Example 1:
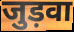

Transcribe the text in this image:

जुड़वा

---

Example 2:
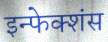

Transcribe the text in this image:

इन्फेक्शंस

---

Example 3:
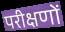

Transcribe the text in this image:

परीक्षणों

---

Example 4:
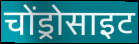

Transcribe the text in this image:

चोंड्रोसाइट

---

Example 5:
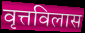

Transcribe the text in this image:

वृत्तविलास